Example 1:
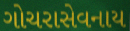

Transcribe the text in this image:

ગોચરાસેવનાય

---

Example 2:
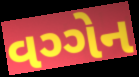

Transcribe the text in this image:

વગ્ગેન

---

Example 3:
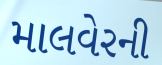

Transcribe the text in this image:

માલવેરની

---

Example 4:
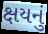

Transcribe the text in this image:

ક્ષયનું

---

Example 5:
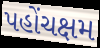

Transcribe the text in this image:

પહોંચક્ષમ